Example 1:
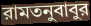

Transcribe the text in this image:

রামতনুবাবুর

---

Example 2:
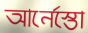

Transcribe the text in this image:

আর্নেস্তো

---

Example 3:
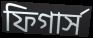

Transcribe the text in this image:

ফিগার্স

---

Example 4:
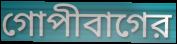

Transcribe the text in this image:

গোপীবাগের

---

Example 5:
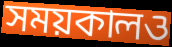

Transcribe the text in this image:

সময়কালও